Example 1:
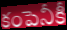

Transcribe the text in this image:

కంపెనీకీ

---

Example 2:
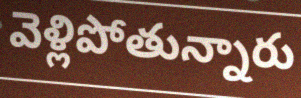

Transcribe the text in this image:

వెళ్లిపోతున్నారు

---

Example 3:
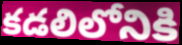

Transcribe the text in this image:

కడలిలోనికి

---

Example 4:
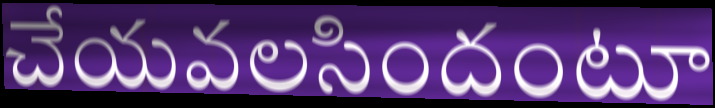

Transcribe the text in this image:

చేయవలసిందంటూ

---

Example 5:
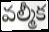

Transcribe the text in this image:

వల్మీక